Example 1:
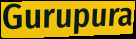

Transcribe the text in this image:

Gurupura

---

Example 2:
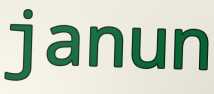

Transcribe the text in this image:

janun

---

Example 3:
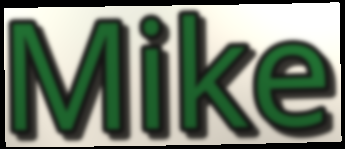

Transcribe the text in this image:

Mike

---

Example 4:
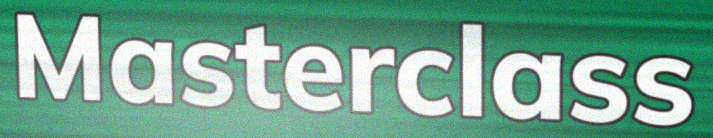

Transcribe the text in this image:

Masterclass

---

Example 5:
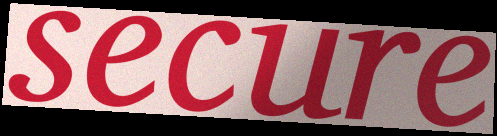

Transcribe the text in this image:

secure